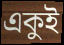
একুই